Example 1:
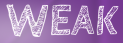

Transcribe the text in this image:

WEAK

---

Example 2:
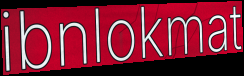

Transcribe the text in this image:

ibnlokmat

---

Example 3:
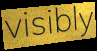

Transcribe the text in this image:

visibly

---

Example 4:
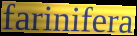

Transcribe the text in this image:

farinifera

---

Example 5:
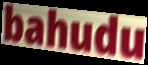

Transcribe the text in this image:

bahudu